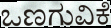
ಒಣಗುವಿಕೆ